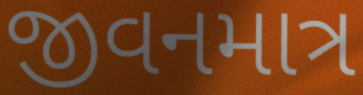
જીવનમાત્ર